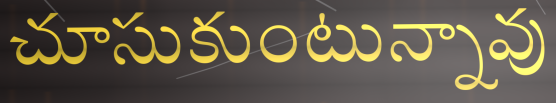
చూసుకుంటున్నావు